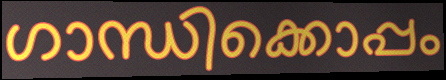
ഗാന്ധിക്കൊപ്പം